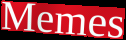
Memes